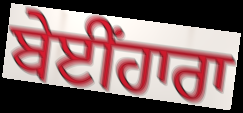
ਬੇਈਂਹਾਰਾ